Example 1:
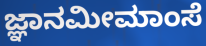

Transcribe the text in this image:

ಜ್ಞಾನಮೀಮಾಂಸೆ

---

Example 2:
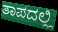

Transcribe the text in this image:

ತಾಪದಲ್ಲಿ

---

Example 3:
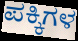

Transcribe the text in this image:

ಪಕ್ಕಿಗಳ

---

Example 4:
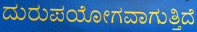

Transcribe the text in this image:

ದುರುಪಯೋಗವಾಗುತ್ತಿದೆ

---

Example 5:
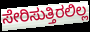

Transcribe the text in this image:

ಸೇರಿಸುತ್ತಿರಲಿಲ್ಲ